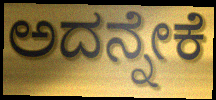
ಅದನ್ನೇಕೆ